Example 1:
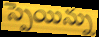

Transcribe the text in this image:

స్పెయిన్ను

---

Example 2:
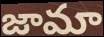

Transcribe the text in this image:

జామా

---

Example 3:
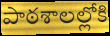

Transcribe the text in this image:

పాఠశాలల్లోకి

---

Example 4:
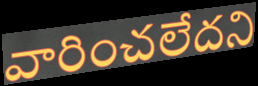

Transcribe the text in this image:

వారించలేదని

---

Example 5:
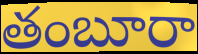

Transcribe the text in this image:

తంబూరా